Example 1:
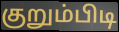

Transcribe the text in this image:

குறும்பிடி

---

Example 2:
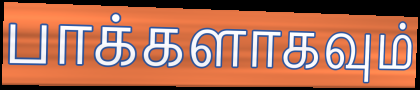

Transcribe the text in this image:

பாக்களாகவும்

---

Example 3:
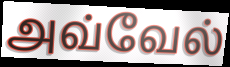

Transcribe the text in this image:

அவ்வேல்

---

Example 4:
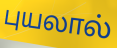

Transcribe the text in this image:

புயலால்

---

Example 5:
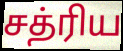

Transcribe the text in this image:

சத்ரிய